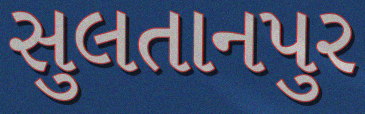
સુલતાનપુર